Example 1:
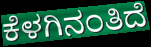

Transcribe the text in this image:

ಕೆಳಗಿನಂತಿದೆ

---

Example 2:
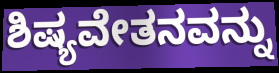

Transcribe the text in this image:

ಶಿಷ್ಯವೇತನವನ್ನು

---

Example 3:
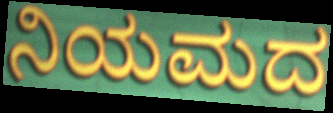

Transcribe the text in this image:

ನಿಯಮದ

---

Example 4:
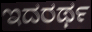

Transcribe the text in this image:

ಇದರರ್ಥ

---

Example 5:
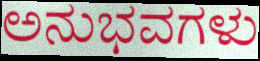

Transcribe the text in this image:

ಅನುಭವಗಳು